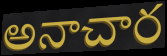
అనాచార